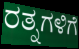
ರತ್ನಗಳಿಗೆ